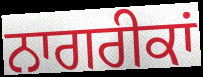
ਨਾਗਰੀਕਾਂ